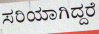
ಸರಿಯಾಗಿದ್ದರೆ